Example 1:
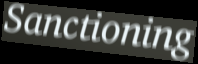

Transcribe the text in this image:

Sanctioning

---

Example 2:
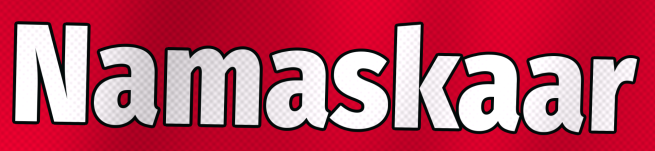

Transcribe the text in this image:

Namaskaar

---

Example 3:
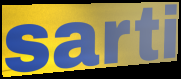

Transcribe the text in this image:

sarti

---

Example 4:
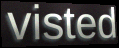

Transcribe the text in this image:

visted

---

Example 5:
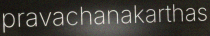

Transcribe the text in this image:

pravachanakarthas